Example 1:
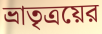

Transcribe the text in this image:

ভ্রাতৃত্রয়ের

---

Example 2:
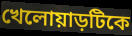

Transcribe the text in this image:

খেলোয়াড়টিকে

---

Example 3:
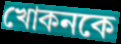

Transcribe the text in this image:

খোকনকে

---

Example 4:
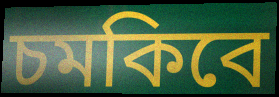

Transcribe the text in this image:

চমকিবে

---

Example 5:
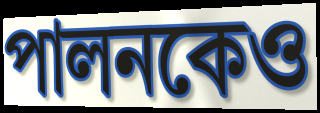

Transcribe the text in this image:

পালনকেও